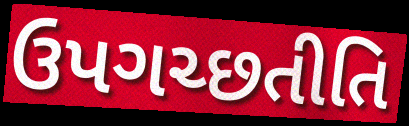
ઉપગચ્છતીતિ